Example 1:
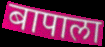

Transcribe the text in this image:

बापाला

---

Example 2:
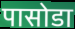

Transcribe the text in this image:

पासोडा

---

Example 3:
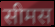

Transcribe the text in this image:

सीमस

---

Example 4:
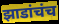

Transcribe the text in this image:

झाडांचंच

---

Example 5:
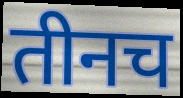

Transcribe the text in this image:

तीनच